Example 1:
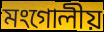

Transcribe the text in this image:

মংগোলীয়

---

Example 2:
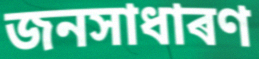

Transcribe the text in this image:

জনসাধাৰণ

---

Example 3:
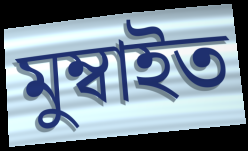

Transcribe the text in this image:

মুম্বাইত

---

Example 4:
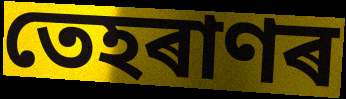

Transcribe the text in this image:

তেহৰাণৰ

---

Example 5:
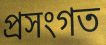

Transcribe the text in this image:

প্ৰসংগত